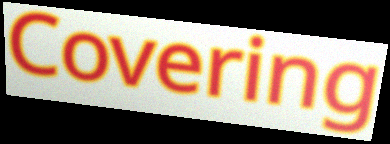
Covering